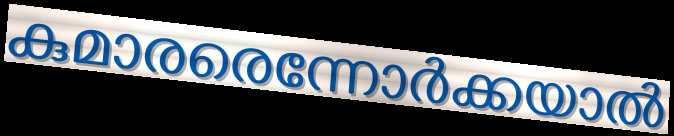
കുമാരരെന്നോർക്കയാൽ